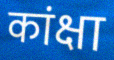
कांक्षा